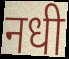
नधी